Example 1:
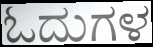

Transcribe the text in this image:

ಓದುಗಳ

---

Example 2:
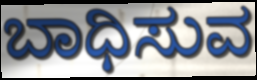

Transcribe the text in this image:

ಬಾಧಿಸುವ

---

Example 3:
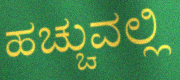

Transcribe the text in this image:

ಹಚ್ಚುವಲ್ಲಿ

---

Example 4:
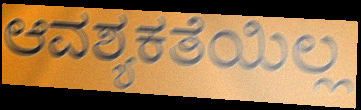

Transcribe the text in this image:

ಆವಶ್ಯಕತೆಯಿಲ್ಲ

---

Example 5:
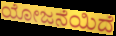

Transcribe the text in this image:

ಯೋಜನೆಯಿದೆ